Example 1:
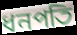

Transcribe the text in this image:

ধনপতি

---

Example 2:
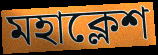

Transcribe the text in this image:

মহাক্লেশ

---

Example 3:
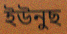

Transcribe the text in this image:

ইউনুছ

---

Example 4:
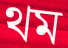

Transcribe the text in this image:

থম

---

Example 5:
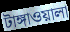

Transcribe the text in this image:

টাঙ্গাওয়ালা